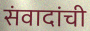
संवादांची